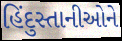
હિંદુસ્તાનીઓને